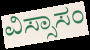
ವಿಸ್ಸಾಸಂ